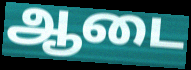
ஆடை